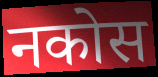
नकोस